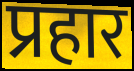
प्रहार